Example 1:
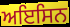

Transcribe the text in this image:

ਅਇਸਿਨ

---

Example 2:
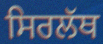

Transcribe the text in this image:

ਸਿਰਲੱਥ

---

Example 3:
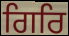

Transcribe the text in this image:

ਗਿਰਿ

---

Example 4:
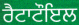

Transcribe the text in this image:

ਰੈਟਾਟੌਇਲ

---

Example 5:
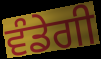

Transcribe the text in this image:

ਵੰਡੇਗੀ